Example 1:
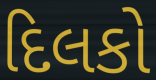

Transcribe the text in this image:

દિલકો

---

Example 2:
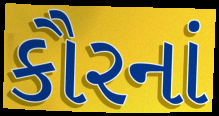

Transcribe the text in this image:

કૌરનાં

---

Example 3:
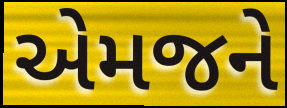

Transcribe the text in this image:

એમજને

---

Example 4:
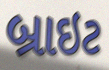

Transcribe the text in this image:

બ્રાઇટ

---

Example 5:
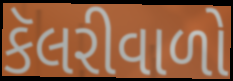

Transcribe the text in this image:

કૅલરીવાળો